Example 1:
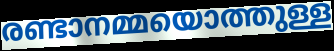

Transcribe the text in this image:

രണ്ടാനമ്മയൊത്തുള്ള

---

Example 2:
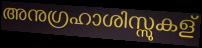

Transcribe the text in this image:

അനുഗ്രഹാശിസ്സുകള്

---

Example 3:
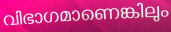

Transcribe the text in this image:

വിഭാഗമാണെങ്കിലും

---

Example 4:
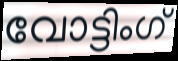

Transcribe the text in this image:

വോട്ടിംഗ്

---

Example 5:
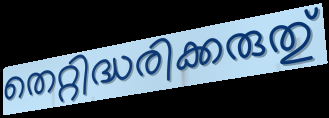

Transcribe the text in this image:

തെറ്റിദ്ധരിക്കരുതു്